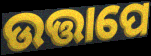
ଉତ୍ତାପେ